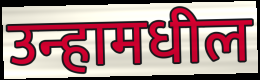
उन्हामधील